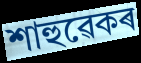
শাহুৱেকৰ